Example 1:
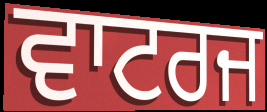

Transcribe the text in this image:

ਵਾਟਰਜ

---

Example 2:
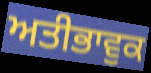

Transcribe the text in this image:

ਅਤੀਭਾਵੁਕ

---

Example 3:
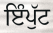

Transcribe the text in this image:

ਇੰਪੁੱਟ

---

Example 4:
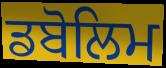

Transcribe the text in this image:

ਡਬੋਲਿਮ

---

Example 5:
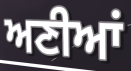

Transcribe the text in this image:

ਅਣੀਆਂ